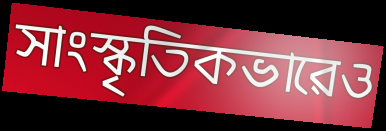
সাংস্কৃতিকভাৱেও